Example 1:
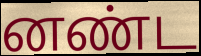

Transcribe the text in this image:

னண்ட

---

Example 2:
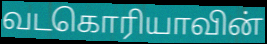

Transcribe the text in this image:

வடகொரியாவின்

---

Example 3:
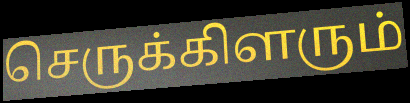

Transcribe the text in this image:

செருக்கிளரும்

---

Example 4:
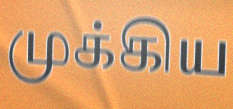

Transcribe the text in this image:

முக்கிய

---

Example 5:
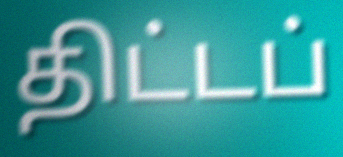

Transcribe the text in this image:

திட்டப்